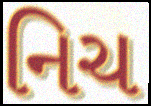
નિચ